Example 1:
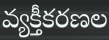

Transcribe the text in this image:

వ్యక్తీకరణల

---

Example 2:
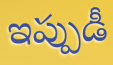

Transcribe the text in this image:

ఇప్పుడీ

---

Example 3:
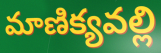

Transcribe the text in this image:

మాణిక్యవల్లి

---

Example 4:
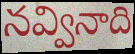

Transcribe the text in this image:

నవ్వినాది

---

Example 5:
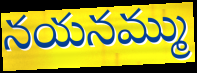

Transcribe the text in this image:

నయనమ్ము